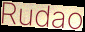
Rudao